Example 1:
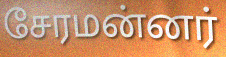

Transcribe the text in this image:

சேரமன்னர்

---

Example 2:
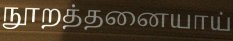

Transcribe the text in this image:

நூறத்தனையாய்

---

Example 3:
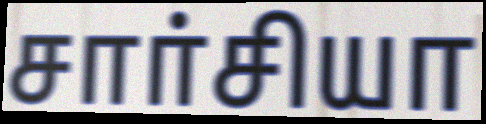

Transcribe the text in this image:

சார்சியா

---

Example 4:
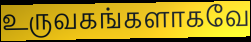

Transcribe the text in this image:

உருவகங்களாகவே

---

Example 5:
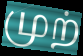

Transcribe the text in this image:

முற்